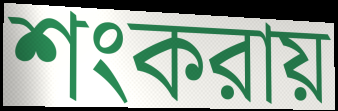
শংকরায়